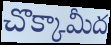
చొక్కామీద